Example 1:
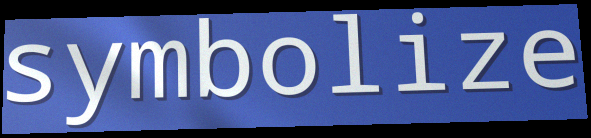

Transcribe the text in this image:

symbolize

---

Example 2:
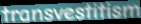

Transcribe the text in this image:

transvestitism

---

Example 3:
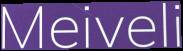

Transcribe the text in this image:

Meiveli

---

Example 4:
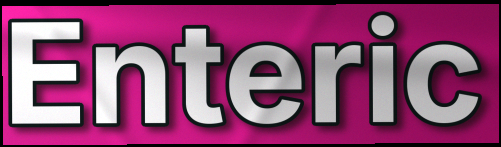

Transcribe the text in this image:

Enteric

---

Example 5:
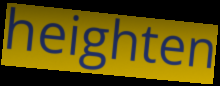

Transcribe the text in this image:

heighten